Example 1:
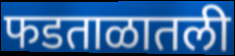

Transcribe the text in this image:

फडताळातली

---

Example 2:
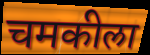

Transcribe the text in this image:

चमकीला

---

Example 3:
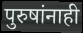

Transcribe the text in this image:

पुरुषांनाही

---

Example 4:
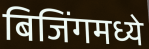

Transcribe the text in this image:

बिजिंगमध्ये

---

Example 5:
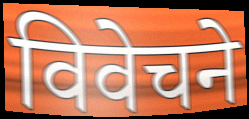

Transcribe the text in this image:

विवेचने